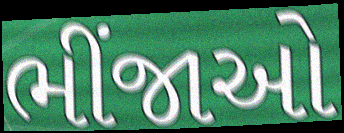
ભીંજાઓ